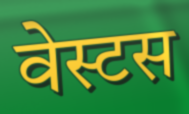
वेस्टस